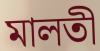
মালতী